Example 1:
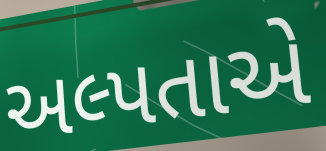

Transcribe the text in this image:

અલ્પતાએ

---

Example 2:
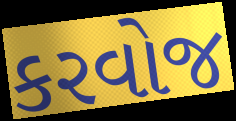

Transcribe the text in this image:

કરવોજ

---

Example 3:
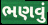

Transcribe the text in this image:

ભણવું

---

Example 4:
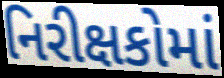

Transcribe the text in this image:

નિરીક્ષકોમાં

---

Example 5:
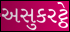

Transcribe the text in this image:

અસુકરટ્ઠે